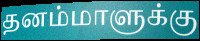
தனம்மாளுக்கு